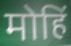
मोहिं